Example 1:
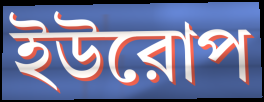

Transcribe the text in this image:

ইউরোপ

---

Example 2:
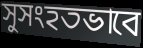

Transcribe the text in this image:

সুসংহতভাবে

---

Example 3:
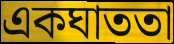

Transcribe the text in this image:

একঘাততা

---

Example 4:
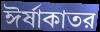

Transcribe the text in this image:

ঈর্ষাকাতর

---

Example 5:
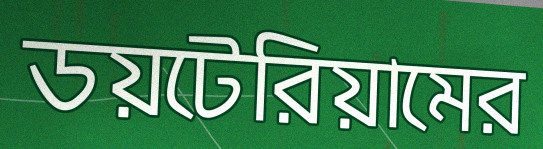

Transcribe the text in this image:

ডয়টেরিয়ামের